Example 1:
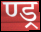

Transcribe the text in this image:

ण्ड्र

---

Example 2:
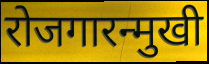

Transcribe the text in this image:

रोजगारन्मुखी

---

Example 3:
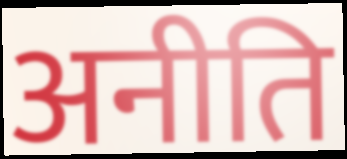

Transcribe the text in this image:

अनीति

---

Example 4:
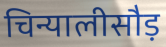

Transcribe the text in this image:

चिन्यालीसौड़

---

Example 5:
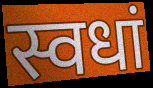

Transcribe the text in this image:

स्वधां